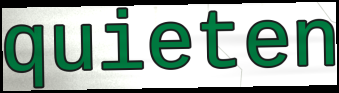
quieten